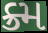
ક્ર્મ